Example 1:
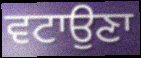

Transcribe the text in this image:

ਵਟਾਉਣਾ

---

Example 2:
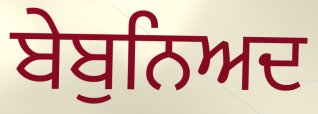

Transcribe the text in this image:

ਬੇਬੁਨਿਅਦ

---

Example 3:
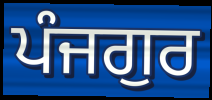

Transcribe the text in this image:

ਪੰਜਗੁਰ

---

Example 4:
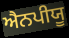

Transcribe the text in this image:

ਐਨਪੀਯੂ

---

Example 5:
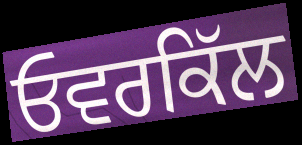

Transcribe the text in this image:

ਓਵਰਕਿੱਲ